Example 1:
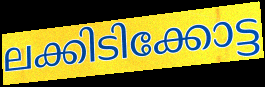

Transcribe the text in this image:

ലക്കിടിക്കോട്ട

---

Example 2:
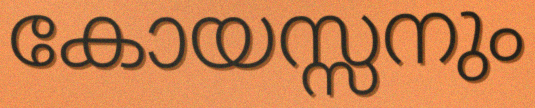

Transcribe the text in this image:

കോയസ്സനും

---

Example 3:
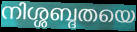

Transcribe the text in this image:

നിശ്ശബ്ദതയെ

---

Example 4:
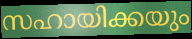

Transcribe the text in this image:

സഹായിക്കയും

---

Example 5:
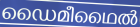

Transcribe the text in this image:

ഡൈമീഥൈൽ